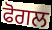
ਫੋਗਲ